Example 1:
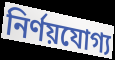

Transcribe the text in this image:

নির্ণয়যোগ্য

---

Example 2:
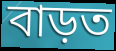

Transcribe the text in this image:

বাড়ত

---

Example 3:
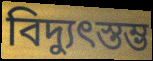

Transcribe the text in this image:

বিদ্যুৎস্তম্ভ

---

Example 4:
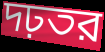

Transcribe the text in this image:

দঢ়তর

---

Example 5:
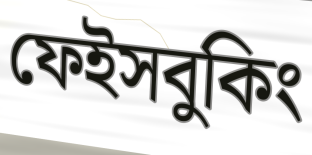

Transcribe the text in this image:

ফেইসবুকিং